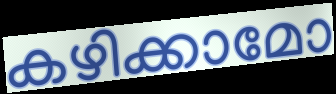
കഴിക്കാമോ